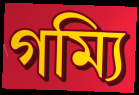
গম্যি